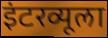
इंटरव्यूला